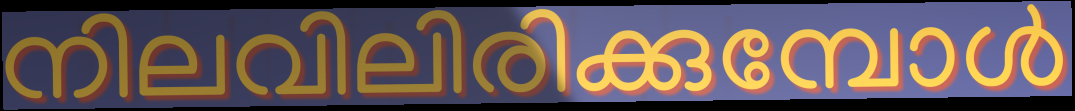
നിലവിലിരിക്കുമ്പോൾ